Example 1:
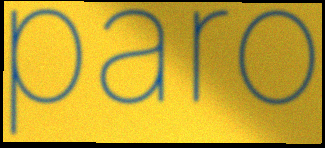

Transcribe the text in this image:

paro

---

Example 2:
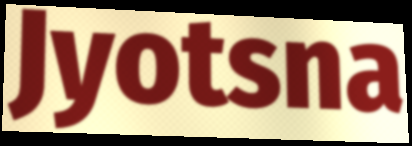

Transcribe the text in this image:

Jyotsna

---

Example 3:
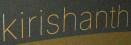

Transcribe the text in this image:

kirishanth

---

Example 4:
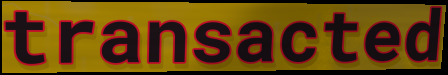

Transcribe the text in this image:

transacted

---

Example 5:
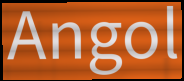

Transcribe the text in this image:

Angol